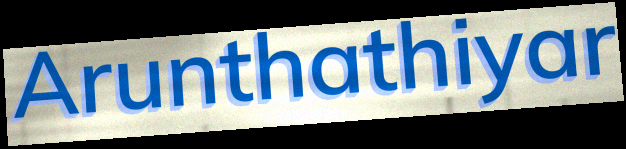
Arunthathiyar